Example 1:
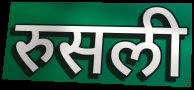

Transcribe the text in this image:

रुसली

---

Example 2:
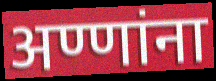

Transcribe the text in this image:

अण्णांना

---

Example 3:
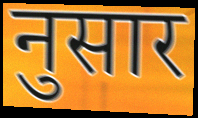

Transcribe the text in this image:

नुसार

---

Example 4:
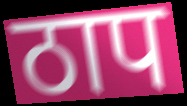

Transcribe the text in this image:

ठाप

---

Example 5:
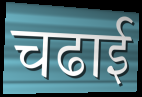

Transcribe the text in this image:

चढाई